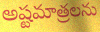
అష్టమాత్రలను